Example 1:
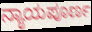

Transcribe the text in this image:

ನ್ಯಾಯಪೂರ್ಣ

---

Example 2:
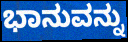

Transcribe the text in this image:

ಭಾನುವನ್ನು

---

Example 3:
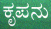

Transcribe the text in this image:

ಕೃಪನು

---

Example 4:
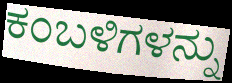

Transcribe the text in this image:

ಕಂಬಳಿಗಳನ್ನು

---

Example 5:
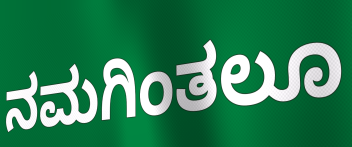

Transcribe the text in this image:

ನಮಗಿಂತಲೂ